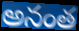
అనంత